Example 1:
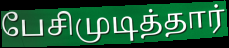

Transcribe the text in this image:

பேசிமுடித்தார்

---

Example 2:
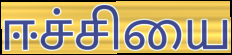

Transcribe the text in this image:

ஈச்சியை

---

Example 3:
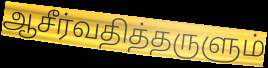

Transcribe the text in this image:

ஆசீர்வதித்தருளும்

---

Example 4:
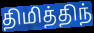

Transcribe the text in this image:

திமித்திந்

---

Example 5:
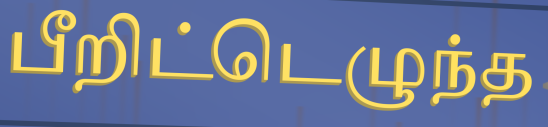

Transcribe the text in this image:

பீறிட்டெழுந்த